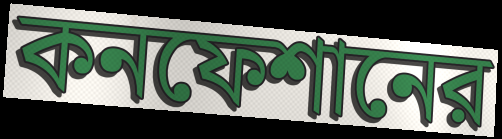
কনফেশানের